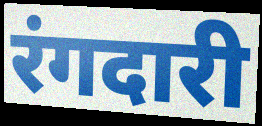
रंगदारी